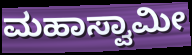
ಮಹಾಸ್ವಾಮೀ